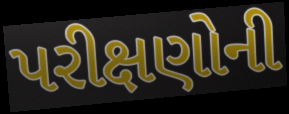
પરીક્ષણોની